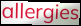
allergies